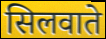
सिलवाते